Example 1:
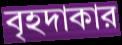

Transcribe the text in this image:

বৃহদাকার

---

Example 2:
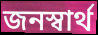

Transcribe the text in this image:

জনস্বার্থ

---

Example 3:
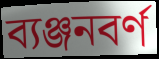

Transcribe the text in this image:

ব্যঞ্জনবর্ণ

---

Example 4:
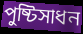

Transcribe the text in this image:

পুষ্টিসাধন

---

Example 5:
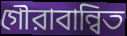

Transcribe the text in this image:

গৌরাবান্বিত